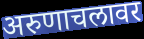
अरुणाचलावर